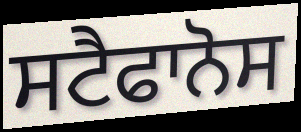
ਸਟੈਫਾਨੋਸ